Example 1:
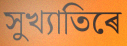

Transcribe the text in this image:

সুখ্যাতিৰে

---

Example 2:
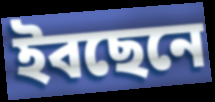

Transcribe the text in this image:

ইবছেনে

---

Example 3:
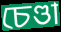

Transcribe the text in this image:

চেণ্ডা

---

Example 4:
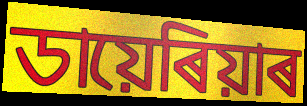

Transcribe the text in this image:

ডায়েৰিয়াৰ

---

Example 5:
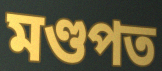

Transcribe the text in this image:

মণ্ডপত